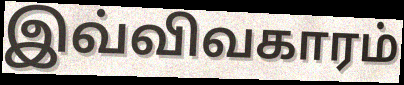
இவ்விவகாரம்